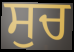
ਸੁਚ